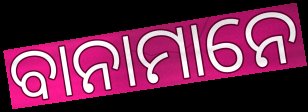
ବାନାମାନେ